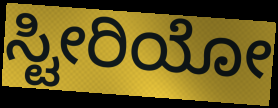
ಸ್ಟೀರಿಯೋ